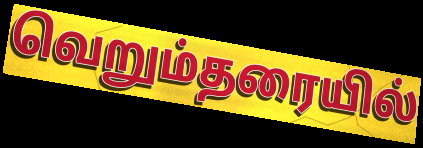
வெறும்தரையில்